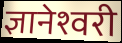
ज्ञानेश्वरी